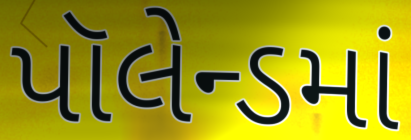
પૉલેન્ડમાં